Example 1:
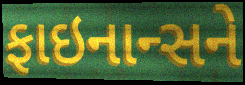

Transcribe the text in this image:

ફાઇનાન્સને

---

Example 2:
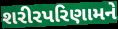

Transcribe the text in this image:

શરીરપરિણામને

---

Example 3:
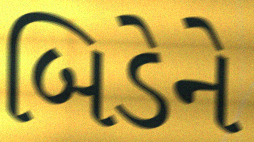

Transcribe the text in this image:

બિડેને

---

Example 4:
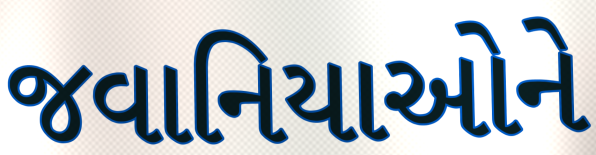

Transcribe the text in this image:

જવાનિયાઓને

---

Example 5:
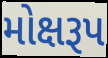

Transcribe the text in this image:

મોક્ષરૂપ